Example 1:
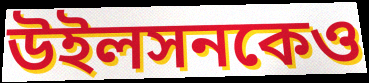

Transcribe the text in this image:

উইলসনকেও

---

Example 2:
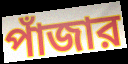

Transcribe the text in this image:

পাঁজার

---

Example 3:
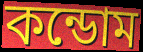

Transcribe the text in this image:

কন্ডোম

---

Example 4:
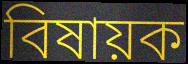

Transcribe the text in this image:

বিষায়ক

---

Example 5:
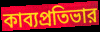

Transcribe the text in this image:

কাব্যপ্রতিভার